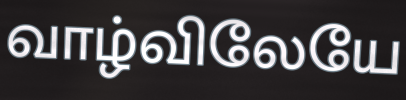
வாழ்விலேயே